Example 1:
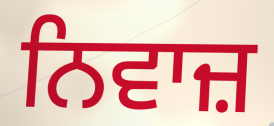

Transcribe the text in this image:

ਨਿਵਾਜ਼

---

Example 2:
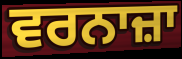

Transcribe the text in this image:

ਵਰਨਾਜ਼ਾ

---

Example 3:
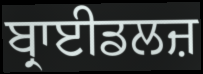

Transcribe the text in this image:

ਬ੍ਰਾਈਡਲਜ਼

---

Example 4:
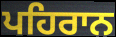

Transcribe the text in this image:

ਪਹਿਰਾਨ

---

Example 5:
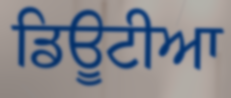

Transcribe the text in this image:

ਡਿਊਟੀਆ